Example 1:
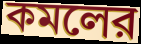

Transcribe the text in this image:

কমলের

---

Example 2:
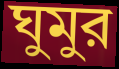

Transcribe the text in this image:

ঘুমুর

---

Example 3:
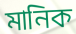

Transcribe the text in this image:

মানিক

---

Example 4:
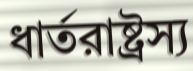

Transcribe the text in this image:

ধার্তরাষ্ট্রস্য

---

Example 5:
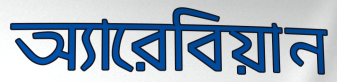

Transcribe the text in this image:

অ্যারেবিয়ান